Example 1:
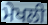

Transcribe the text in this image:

ਮੇਖਲੀ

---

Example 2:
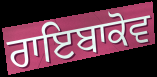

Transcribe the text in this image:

ਰਾਇਬਾਕੋਵ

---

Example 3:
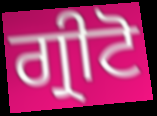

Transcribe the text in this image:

ਗ੍ਰੀਟੋ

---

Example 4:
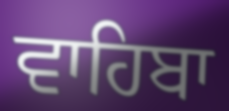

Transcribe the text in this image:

ਵਾਹਿਬਾ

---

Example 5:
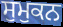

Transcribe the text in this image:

ਸੁਮੁਕਨ